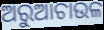
ଅରୁଆଚାଉଳ